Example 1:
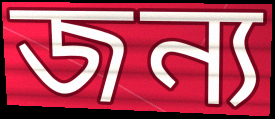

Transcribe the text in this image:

জন্য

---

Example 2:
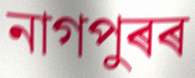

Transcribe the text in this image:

নাগপুৰৰ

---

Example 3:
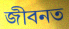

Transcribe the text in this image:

জীবনত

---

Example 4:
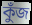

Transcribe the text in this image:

কুঁজ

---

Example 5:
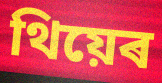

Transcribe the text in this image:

থিয়েৰ